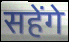
सहेंगे